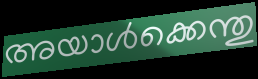
അയാൾക്കെന്തു